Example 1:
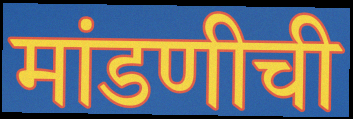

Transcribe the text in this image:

मांडणीची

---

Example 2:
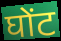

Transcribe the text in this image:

घोंट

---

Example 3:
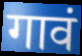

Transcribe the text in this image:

गावं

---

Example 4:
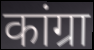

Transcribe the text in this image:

कांग्रा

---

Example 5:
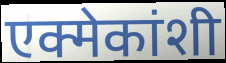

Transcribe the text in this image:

एक्मेकांशी